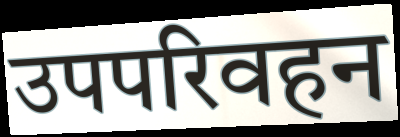
उपपरिवहन